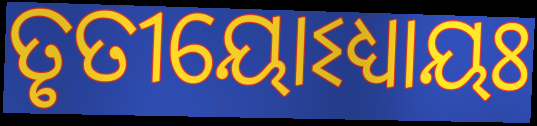
ତୃତୀୟୋଽଧ୍ୟାୟଃ